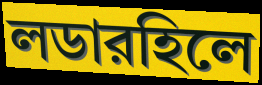
লডারহিলে